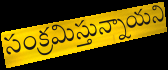
సంక్రమిస్తున్నాయని